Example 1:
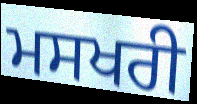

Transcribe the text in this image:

ਮਸਖਰੀ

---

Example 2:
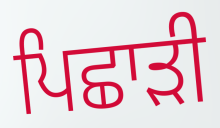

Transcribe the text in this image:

ਪਿਛਾੜੀ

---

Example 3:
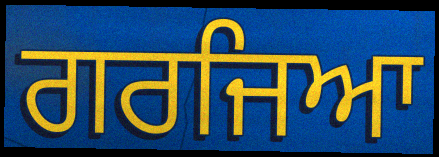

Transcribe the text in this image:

ਗਰਜਿਆ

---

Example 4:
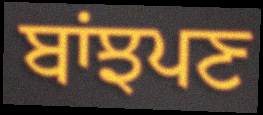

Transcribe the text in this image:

ਬਾਂਝਪਣ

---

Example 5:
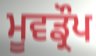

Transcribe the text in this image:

ਮੂਵਡ੍ਰੌਪ